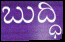
ಬುದ್ಧಿ